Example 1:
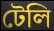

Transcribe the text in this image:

টেলি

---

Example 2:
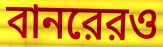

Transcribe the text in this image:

বানরেরও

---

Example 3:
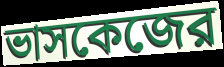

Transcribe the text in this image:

ভাসকেজের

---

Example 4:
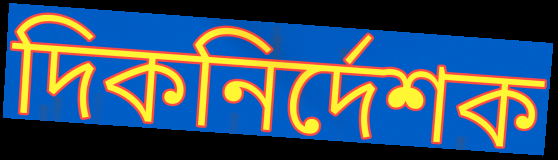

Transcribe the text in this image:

দিকনির্দেশক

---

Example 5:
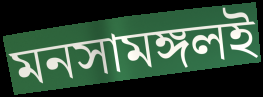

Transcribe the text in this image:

মনসামঙ্গলই